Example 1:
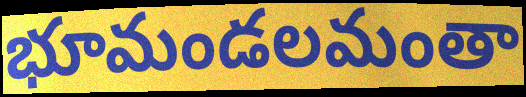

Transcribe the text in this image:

భూమండలమంతా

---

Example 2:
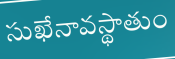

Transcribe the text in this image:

సుఖేనావస్థాతుం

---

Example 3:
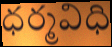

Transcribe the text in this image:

ధర్మవిధి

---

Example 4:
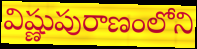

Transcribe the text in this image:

విష్ణుపురాణంలోని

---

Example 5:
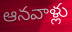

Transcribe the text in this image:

ఆనవాళ్లు